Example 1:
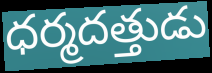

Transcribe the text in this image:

ధర్మదత్తుడు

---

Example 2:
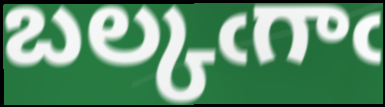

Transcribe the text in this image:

బల్కఁగాఁ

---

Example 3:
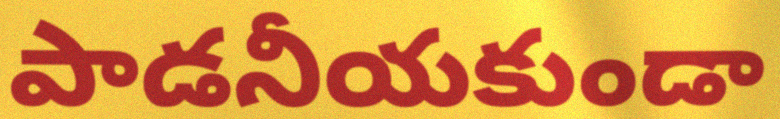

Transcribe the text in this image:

పాడనీయకుండా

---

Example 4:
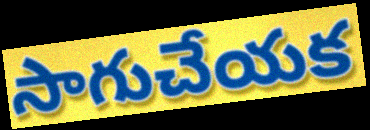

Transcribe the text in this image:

సాగుచేయక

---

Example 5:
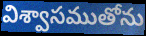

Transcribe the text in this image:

విశ్వాసముతోను